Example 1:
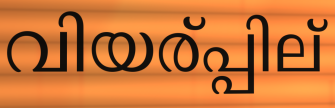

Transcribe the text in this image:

വിയര്പ്പില്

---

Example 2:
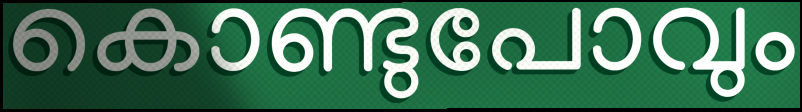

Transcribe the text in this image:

കൊണ്ടുപോവും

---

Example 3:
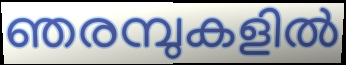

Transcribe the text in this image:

ഞരമ്പുകളിൽ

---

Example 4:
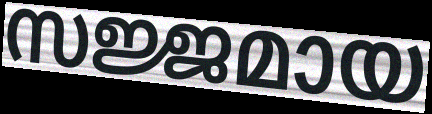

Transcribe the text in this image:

സജ്ജമായ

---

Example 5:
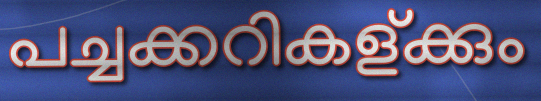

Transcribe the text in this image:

പച്ചക്കറികള്ക്കും